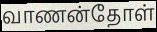
வாணன்தோள்